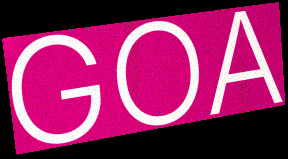
GOA